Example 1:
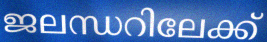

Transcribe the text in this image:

ജലന്ധറിലേക്ക്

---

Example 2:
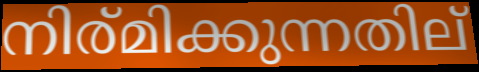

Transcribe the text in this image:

നിര്മിക്കുന്നതില്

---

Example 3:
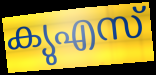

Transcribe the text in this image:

ക്യുഎസ്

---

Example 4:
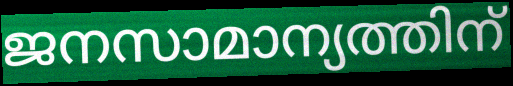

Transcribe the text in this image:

ജനസാമാന്യത്തിന്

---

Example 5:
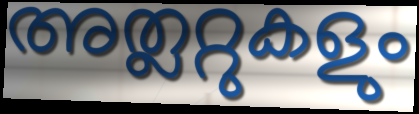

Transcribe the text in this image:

അത്ലറ്റുകളും